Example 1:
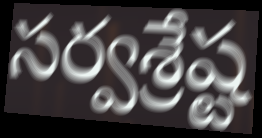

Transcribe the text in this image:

సర్వశ్రేష్ట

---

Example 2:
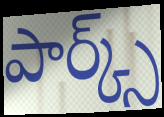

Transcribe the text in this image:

పార్క్స్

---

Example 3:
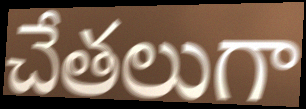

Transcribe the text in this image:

చేతలుగా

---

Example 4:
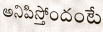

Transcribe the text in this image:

అనిపిస్తోందంటే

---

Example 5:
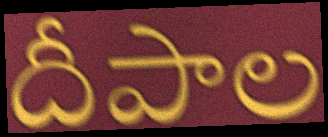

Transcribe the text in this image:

దీపాల